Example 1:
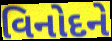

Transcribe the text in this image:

વિનોદને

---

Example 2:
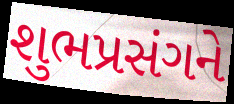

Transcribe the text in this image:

શુભપ્રસંગને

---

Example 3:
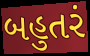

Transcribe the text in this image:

બહુતરં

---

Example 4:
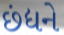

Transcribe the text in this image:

છંદ્યને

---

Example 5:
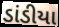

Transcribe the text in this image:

ડાંડીયા